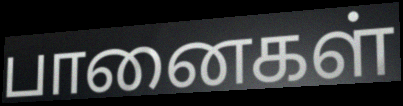
பானைகள்